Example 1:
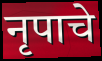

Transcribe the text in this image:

नृपाचे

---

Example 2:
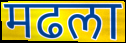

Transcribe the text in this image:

मढला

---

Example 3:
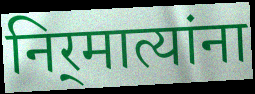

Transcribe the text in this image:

निर्मात्यांना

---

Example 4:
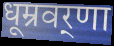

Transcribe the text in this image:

धूम्रवर्णा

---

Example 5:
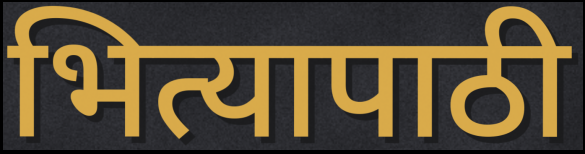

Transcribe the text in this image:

भित्यापाठी